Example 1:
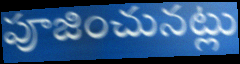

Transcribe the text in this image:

పూజించునట్లు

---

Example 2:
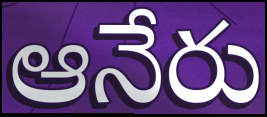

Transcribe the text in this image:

ఆనేరు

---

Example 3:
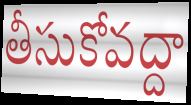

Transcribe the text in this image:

తీసుకోవద్దా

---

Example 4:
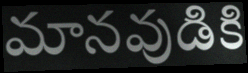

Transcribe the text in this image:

మానవుడికి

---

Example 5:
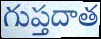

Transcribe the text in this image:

గుప్తదాత